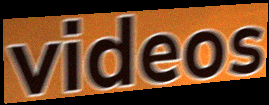
videos